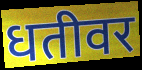
धतीवर